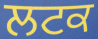
ਲਟਕ